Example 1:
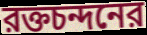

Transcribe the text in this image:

রক্তচন্দনের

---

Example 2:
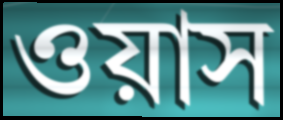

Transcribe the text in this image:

ওয়াস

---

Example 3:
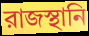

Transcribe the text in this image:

রাজস্থানি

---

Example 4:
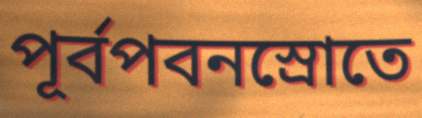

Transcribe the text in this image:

পূর্বপবনস্রোতে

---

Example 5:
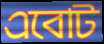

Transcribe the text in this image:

এবোট